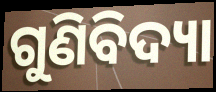
ଗୁଣିବିଦ୍ୟା